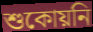
শুকোয়নি